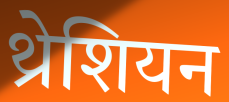
थ्रेशियन